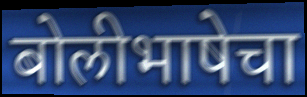
बोलीभाषेचा